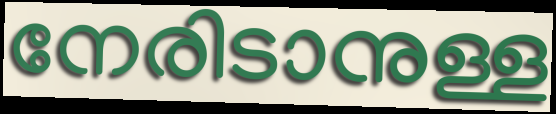
നേരിടാനുള്ള